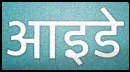
आइडे